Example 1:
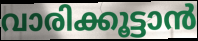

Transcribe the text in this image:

വാരിക്കൂട്ടാൻ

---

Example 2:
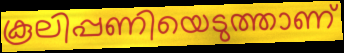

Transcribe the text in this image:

കൂലിപ്പണിയെടുത്താണ്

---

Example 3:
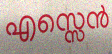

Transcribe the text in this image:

എസ്സെൻ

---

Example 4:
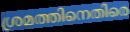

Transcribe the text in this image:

ശ്രമത്തിനെതിരെ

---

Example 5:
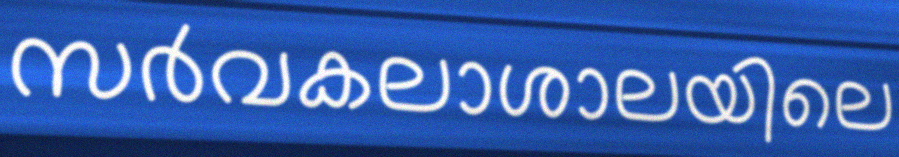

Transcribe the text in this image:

സർവകലാശാലയിലെ